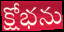
క్షోభను